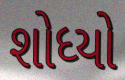
શોધ્યો